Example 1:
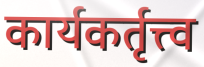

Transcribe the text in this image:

कार्यकर्तृत्त्व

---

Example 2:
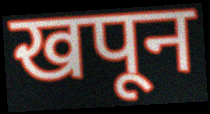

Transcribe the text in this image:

खपून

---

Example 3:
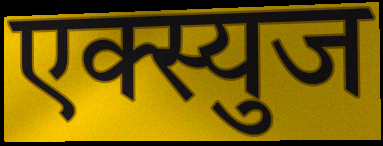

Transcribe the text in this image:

एक्स्युज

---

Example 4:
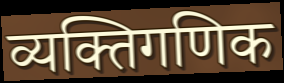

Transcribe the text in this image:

व्यक्तिगणिक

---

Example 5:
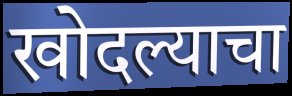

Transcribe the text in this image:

खोदल्याचा